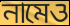
নামেও